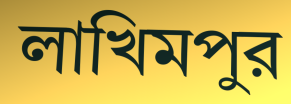
লাখিমপুর